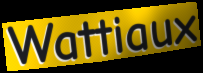
Wattiaux